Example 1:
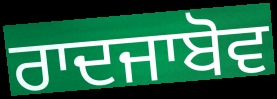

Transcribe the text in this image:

ਰਾਦਜਾਬੋਵ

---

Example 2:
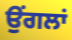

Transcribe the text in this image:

ਉਂਗਲਾਂ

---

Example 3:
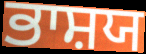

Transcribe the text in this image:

ਭਾਸ਼ਯ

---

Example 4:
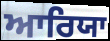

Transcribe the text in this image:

ਆਰਿਯਾ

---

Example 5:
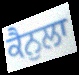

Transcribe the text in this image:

ਕੈਨੁਲਾ